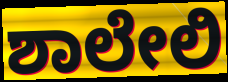
ಶಾಲೇಲಿ